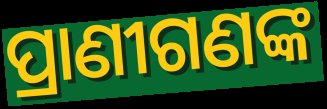
ପ୍ରାଣୀଗଣଙ୍କ